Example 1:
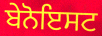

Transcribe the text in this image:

ਬੇਨੋਇਸਟ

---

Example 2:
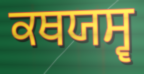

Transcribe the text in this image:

ਕਥਯਸ੍ਵ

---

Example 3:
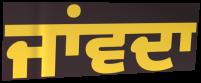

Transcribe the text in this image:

ਜਾਂਵਦਾ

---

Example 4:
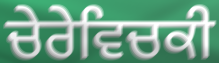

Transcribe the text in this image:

ਚੇਰੇਵਿਚਕੀ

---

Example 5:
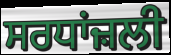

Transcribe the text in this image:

ਸਰਧਾਂਜ਼ਲੀ